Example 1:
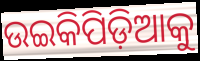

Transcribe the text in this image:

ଉଇକିପିଡ଼ିଆକୁ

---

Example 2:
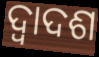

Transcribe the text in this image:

ଦ୍ବାଦଶ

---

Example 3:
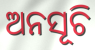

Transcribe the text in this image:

ଅନସୂଚି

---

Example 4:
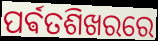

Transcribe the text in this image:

ପର୍ଵତଶିଖରରେ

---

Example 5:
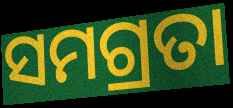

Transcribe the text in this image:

ସମଗ୍ରତା